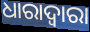
ଧାରାଦ୍ୱାରା